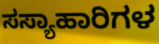
ಸಸ್ಯಾಹಾರಿಗಳ